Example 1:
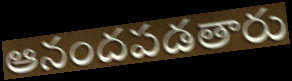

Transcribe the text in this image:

ఆనందపడతారు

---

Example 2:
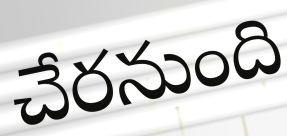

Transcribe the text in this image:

చేరనుంది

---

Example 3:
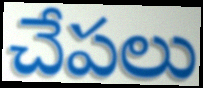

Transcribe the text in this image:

చేపలు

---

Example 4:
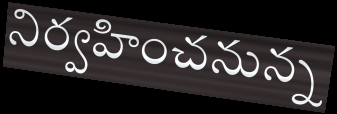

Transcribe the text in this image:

నిర్వహించనున్న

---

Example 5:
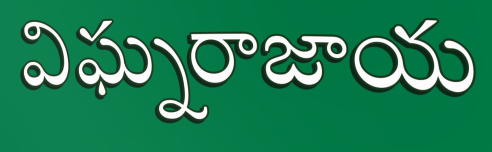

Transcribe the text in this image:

విఘ్నరాజాయ